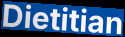
Dietitian